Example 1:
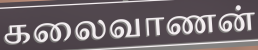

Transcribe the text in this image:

கலைவாணன்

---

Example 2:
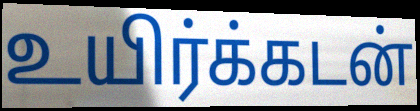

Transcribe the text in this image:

உயிர்க்கடன்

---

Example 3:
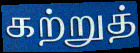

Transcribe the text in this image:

கற்றுத்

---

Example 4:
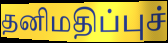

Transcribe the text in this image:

தனிமதிப்புச்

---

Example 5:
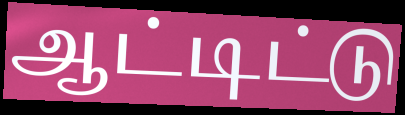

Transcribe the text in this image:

ஆட்டிட்டு